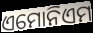
ଏମୋନିଏମ